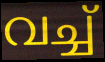
വച്ച്